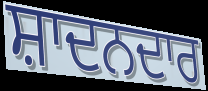
ਸ਼ਾਦਨਦਾਰ